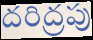
దరిద్రపు